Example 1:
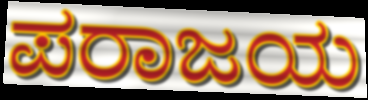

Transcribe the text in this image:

ಪರಾಜಯ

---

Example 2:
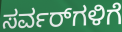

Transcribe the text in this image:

ಸರ್ವರ್‌ಗಳಿಗೆ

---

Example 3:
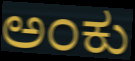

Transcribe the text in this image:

ಅಂಕು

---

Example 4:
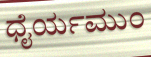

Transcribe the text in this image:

ಧೈರ್ಯಮುಂ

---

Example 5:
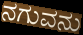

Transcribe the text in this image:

ನಗುವನು